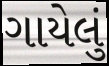
ગાયેલું